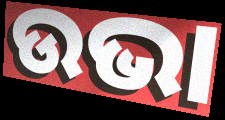
ଉଭା